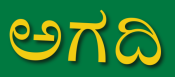
ಅಗದಿ